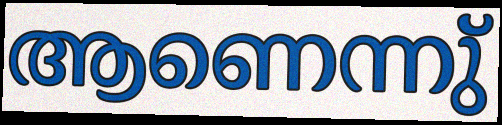
ആണെന്നു്